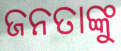
ଜନତାଙ୍କୁ